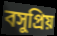
বসুপ্রিয়